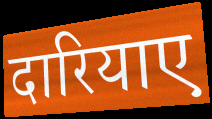
दारियाए